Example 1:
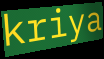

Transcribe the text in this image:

kriya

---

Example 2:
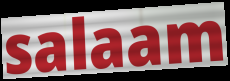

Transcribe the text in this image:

salaam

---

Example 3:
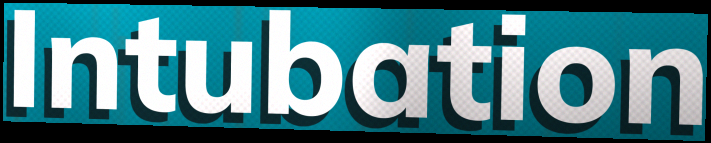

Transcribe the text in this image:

Intubation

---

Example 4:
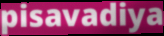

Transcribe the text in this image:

pisavadiya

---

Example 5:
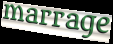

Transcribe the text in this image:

marrage